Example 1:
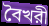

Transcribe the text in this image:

বৈখরী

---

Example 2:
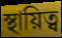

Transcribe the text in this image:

স্থায়িত্ব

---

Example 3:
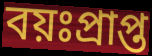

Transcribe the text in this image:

বয়ঃপ্রাপ্ত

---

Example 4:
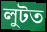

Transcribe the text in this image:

লুটত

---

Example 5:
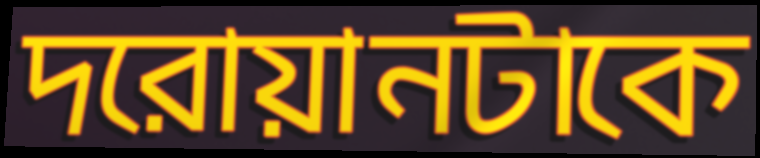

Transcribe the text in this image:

দরোয়ানটাকে